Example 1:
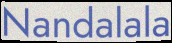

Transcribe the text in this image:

Nandalala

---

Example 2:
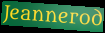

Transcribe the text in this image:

Jeannerod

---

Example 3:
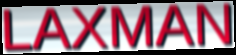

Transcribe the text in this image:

LAXMAN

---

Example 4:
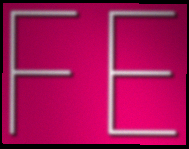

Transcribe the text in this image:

FE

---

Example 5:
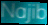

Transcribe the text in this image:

Najib